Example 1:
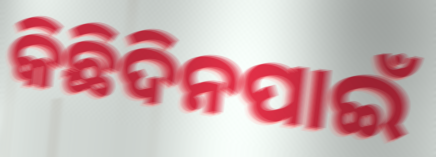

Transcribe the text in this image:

କିଛିଦିନପାଇଁ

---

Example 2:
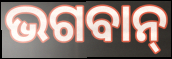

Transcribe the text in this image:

ଭଗବାନ୍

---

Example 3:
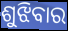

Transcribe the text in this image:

ଶୁଝିବାର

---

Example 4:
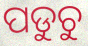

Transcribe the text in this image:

ପଡୁଚୁ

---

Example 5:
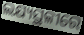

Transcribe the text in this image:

ଲକ୍ଷ୍ୟସ୍ଥଳୀରେ